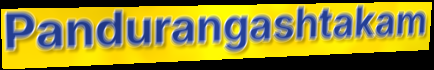
Pandurangashtakam